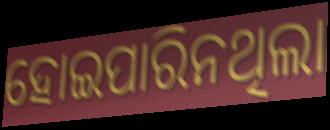
ହୋଇପାରିନଥିଲା